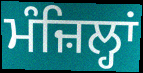
ਮੰਜ਼ਿਲ੍ਹਾਂ